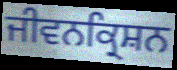
ਜੀਵਨਕ੍ਰਿਸ਼ਨ